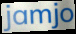
jamjo